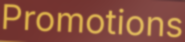
Promotions